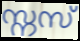
സ്നസ്